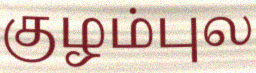
குழம்புல